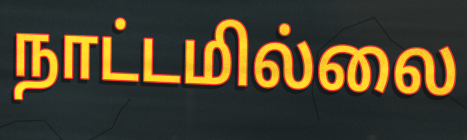
நாட்டமில்லை